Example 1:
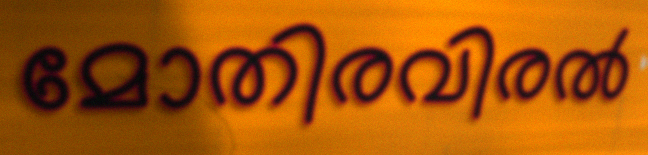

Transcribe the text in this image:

മോതിരവിരൽ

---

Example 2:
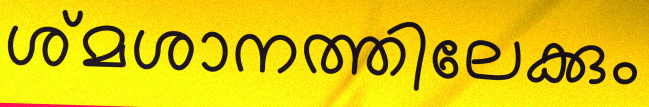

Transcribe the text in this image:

ശ്മശാനത്തിലേക്കും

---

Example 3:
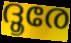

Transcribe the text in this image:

ദൂരേ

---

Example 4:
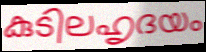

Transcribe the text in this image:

കുടിലഹൃദയം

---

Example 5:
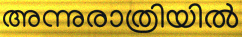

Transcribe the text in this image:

അന്നുരാത്രിയിൽ